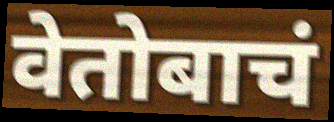
वेतोबाचं